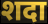
शदा